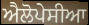
ਐਲੋਪੇਸੀਆ